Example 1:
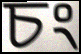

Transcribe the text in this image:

চং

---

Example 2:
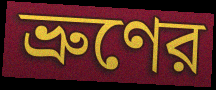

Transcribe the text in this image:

ভ্রুণের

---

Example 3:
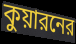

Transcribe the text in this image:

কুয়ারনের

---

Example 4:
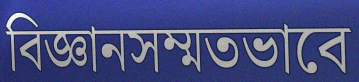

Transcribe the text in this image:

বিজ্ঞানসম্মতভাবে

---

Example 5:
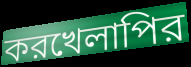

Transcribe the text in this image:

করখেলাপির